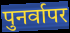
पुनर्वापर